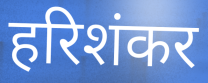
हरिशंकर